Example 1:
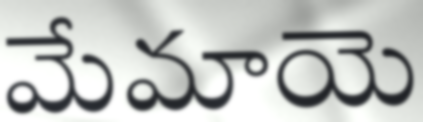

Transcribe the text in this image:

మేమాయె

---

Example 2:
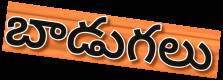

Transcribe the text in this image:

బాడుగలు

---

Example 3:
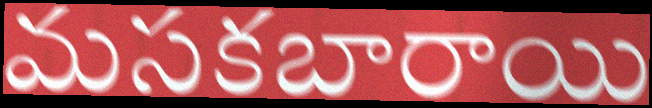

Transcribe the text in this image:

మసకబారాయి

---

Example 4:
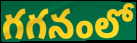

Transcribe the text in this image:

గగనంలో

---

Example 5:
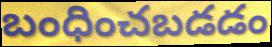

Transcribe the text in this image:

బంధించబడడం